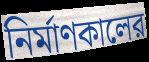
নির্মাণকালের